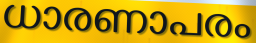
ധാരണാപരം